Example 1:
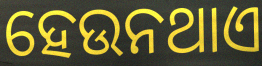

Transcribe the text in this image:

ହେଉନଥାଏ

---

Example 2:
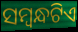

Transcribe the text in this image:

ସମ୍ବନ୍ଧଟିଏ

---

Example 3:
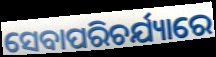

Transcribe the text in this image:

ସେବାପରିଚର୍ଯ୍ୟାରେ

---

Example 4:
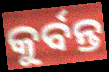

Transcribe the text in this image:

କୁର୍ବନ୍ତ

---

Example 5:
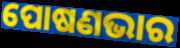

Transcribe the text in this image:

ପୋଷଣଭାର